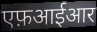
एफ़आईआर